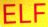
ELF